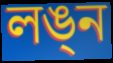
লঙ্ন